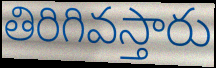
తిరిగివస్తారు